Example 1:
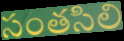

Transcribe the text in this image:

సంతసిలి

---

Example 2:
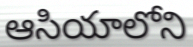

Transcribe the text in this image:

ఆసియాలోని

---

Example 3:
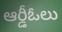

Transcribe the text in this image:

ఆర్డీఓలు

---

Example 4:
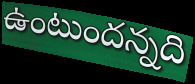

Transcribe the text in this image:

ఉంటుందన్నది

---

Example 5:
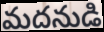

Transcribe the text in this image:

మదనుడి